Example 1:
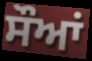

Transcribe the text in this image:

ਸੌਆਂ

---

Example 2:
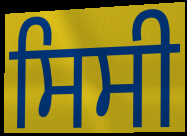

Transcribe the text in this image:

ਸਿਸੀ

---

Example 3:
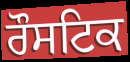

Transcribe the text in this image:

ਰੌਸਟਿਕ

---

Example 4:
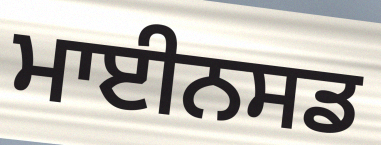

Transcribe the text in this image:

ਮਾਈਨਸਡ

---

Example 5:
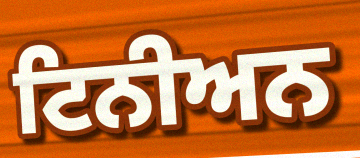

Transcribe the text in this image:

ਟਿਨੀਅਨ